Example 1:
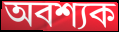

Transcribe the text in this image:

অবশ্যক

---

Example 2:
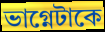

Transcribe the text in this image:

ভাগ্নেটাকে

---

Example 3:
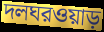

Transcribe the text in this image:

দলঘরওয়াড়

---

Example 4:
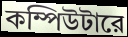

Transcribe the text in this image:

কম্পিউটারে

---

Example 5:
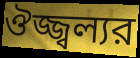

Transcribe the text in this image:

ঔজ্জ্বল্যর